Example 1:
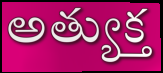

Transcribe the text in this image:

అత్యుక్త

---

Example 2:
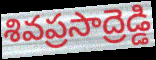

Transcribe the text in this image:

శివప్రసాద్రెడ్డి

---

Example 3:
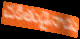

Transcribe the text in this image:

చకితుడైనాడు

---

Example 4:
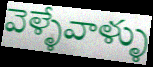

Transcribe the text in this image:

వెళ్ళేవాళ్ళు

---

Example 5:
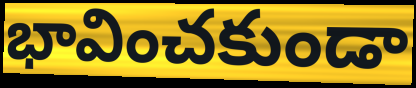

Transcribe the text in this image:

భావించకుండా